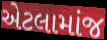
એટલામાંજ